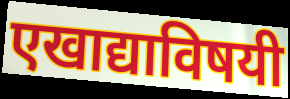
एखाद्याविषयी